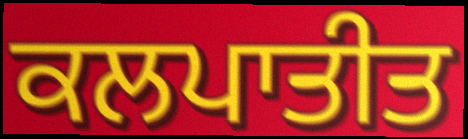
ਕਲਪਾਤੀਤ